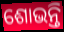
ଶୋଭନ୍ତି